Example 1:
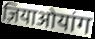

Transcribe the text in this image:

ज़ियाओयांग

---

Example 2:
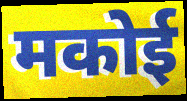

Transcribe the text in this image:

मकोई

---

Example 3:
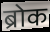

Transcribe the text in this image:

ब्रोक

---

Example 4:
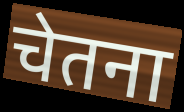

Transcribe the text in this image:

चेतना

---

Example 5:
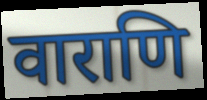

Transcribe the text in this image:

वाराणि